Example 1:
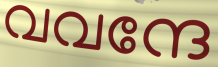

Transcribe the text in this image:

വവന്ദേ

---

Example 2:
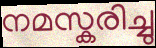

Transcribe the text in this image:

നമസ്കരിച്ചു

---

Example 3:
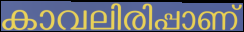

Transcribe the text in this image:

കാവലിരിപ്പാണ്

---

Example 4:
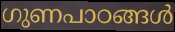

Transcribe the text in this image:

ഗുണപാഠങ്ങൾ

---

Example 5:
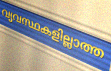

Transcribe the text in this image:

വ്യവസ്ഥകളില്ലാത്ത